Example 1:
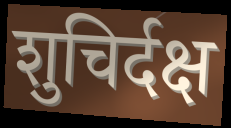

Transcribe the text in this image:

शुचिर्दक्ष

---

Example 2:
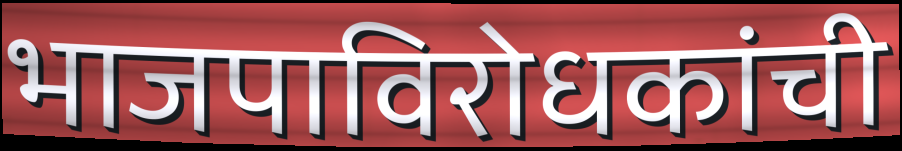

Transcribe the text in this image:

भाजपाविरोधकांची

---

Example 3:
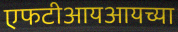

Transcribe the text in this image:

एफटीआयआयच्या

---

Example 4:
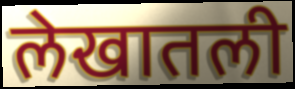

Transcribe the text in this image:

लेखातली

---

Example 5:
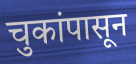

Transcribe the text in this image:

चुकांपासून